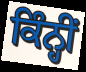
ਕਿੰਨ੍ਹੀਂ